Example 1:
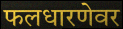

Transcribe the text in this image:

फलधारणेवर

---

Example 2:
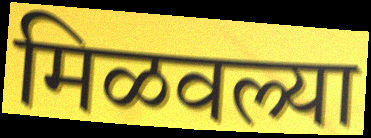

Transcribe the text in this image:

मिळवल्या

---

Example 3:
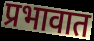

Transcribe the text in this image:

प्रभावात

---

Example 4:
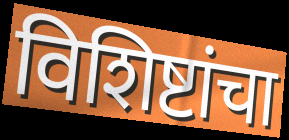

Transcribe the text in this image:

विशिष्टांचा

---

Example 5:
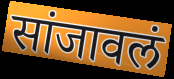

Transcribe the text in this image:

सांजावलं